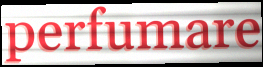
perfumare